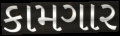
કામગાર